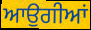
ਆਉਗੀਆਂ